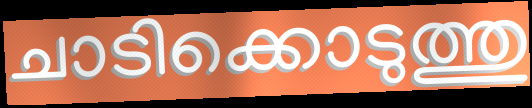
ചാടിക്കൊടുത്തു